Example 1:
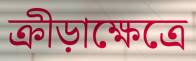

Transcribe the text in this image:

ক্রীড়াক্ষেত্রে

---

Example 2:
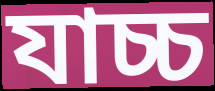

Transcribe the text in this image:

যাচ্চ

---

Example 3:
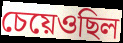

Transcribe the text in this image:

চেয়েওছিল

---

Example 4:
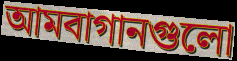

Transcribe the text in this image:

আমবাগানগুলো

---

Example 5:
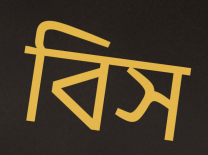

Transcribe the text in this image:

বিস